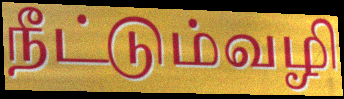
நீட்டும்வழி